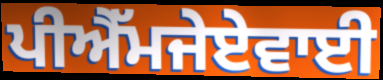
ਪੀਐੱਮਜੇਏਵਾਈ